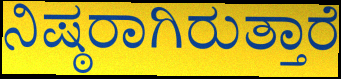
ನಿಷ್ಠರಾಗಿರುತ್ತಾರೆ